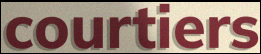
courtiers